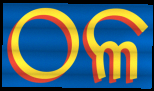
ଠଳ